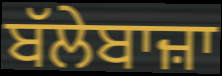
ਬੱਲੇਬਾਜ਼ਾ